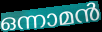
ഒന്നാമൻ